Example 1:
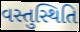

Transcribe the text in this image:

વસ્તુસ્થિતિ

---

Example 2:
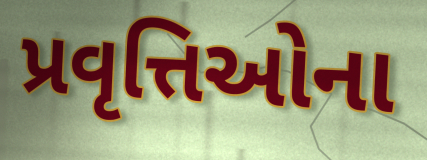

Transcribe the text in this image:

પ્રવૃત્તિઓના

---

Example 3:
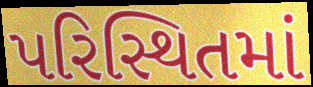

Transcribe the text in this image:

પરિસ્થિતમાં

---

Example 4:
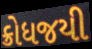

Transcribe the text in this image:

ક્રોધજયી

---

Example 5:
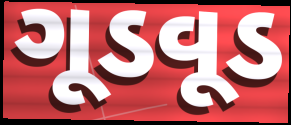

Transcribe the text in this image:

ગૂડવૂડ